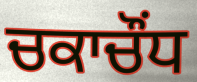
ਚਕਾਚੌਂਧ